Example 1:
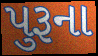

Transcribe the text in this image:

પુરૂના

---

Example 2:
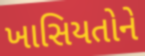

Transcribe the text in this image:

ખાસિયતોને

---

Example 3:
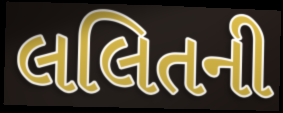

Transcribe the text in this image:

લલિતની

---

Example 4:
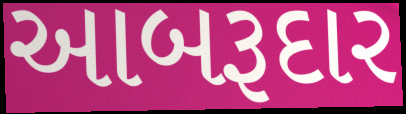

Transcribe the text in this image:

આબરૂદાર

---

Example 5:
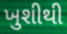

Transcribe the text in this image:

ખુશીથી